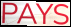
PAYS